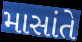
માસાંતે